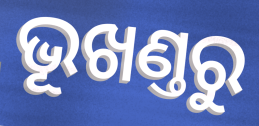
ଭୂଖଣ୍ତରୁ